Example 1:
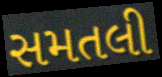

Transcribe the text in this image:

સમતલી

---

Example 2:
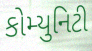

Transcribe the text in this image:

કોમ્યુનિટી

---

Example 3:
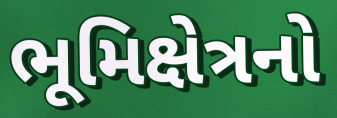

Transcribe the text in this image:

ભૂમિક્ષેત્રનો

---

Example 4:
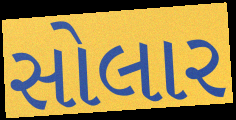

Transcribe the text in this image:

સોલાર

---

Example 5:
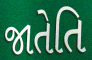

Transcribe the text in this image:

જાતેતિ